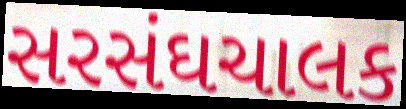
સરસંઘચાલક